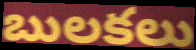
బులకలు